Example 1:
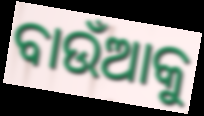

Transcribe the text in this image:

ବାଉଁଆକୁ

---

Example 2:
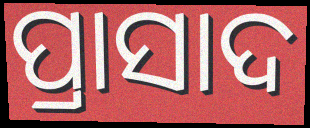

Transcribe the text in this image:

ପ୍ରାସାଦ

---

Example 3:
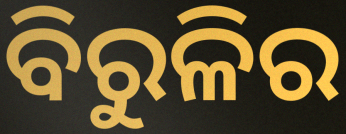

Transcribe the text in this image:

ବିରୁଳିର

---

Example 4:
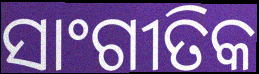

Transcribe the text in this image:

ସାଂଗୀତିକ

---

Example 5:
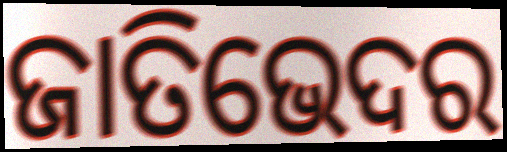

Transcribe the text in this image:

ଜାତିଭେଦର